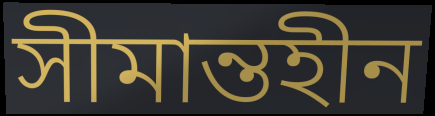
সীমান্তহীন